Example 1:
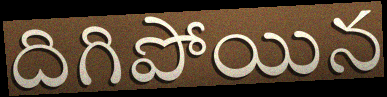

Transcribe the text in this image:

దిగిపోయిన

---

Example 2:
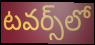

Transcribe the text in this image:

టవర్స్‌లో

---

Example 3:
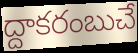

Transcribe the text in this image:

ద్దాకరంబుచే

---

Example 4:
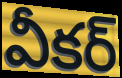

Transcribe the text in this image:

వీకర్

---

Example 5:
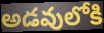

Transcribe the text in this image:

అడవులోకి